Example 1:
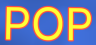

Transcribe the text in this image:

POP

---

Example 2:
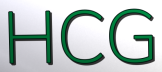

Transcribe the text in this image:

HCG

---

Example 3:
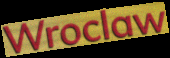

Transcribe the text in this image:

Wroclaw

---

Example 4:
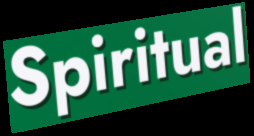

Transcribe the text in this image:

Spiritual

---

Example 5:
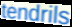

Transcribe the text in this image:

tendrils